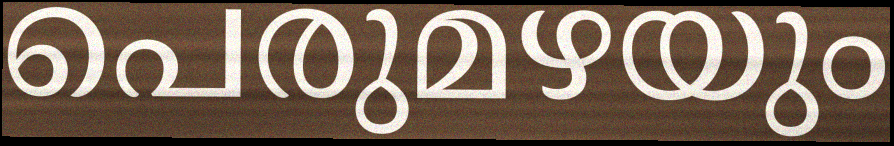
പെരുമഴയും